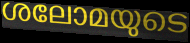
ശലോമയുടെ